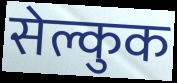
सेल्कुक